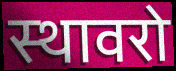
स्थावरो